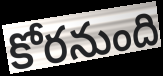
కోరనుంది